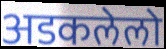
अडकलेलो